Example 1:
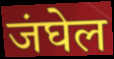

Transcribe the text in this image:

जंघेल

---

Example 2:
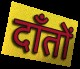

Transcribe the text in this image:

दाँतों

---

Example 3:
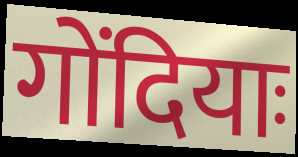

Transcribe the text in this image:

गोंदियाः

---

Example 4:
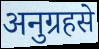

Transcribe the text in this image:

अनुग्रहसे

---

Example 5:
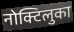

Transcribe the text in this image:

नोक्टिलुका